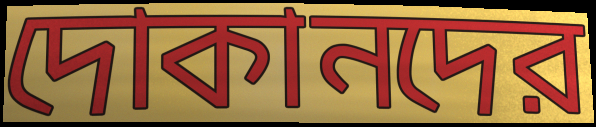
দোকানদের